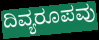
ದಿವ್ಯರೂಪವು